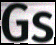
Gs